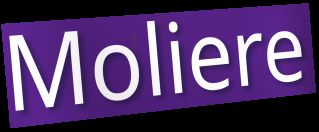
Moliere